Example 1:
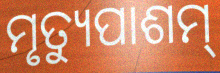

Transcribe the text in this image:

ମୃତ୍ୟୁପାଶମ୍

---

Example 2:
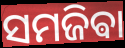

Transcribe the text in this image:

ସମଜିଵା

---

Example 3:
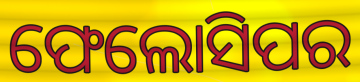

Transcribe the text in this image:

ଫେଲୋସିପର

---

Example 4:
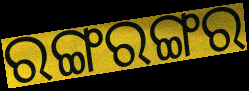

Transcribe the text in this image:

ରଙ୍ଗରଙ୍ଗର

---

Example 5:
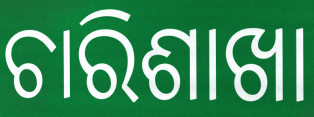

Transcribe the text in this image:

ଚାରିଶାଖା